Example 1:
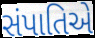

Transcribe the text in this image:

સંપાતિએ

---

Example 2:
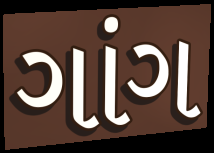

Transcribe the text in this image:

ગાંગ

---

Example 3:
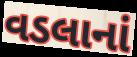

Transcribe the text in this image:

વડલાનાં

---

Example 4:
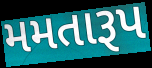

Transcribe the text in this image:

મમતારૂપ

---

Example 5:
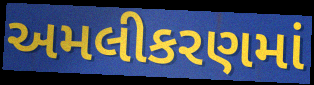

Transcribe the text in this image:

અમલીકરણમાં